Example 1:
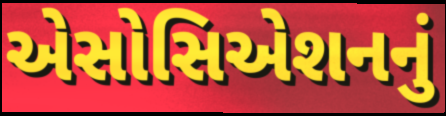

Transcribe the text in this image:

એસોસિએશનનું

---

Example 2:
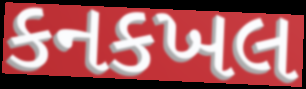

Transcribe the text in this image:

કનકખલ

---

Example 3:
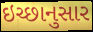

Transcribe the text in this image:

ઇચ્છાનુસાર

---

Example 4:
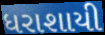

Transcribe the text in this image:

ધરાશાયી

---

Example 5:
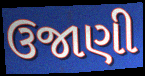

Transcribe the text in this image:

ઉજાણી